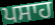
ਪਸਾਹ